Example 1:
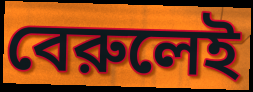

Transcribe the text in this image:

বেরুলেই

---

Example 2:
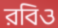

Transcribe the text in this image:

রবিও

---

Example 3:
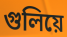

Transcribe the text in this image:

গুলিয়ে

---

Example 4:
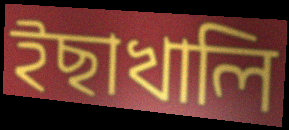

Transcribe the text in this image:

ইছাখালি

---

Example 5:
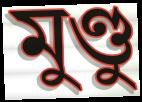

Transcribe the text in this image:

মুণ্ডু